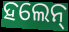
ହଲେନ୍